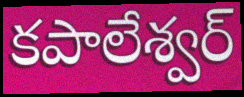
కపాలేశ్వర్